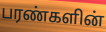
பரண்களின்